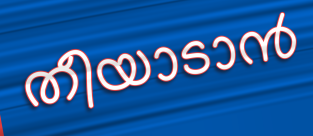
തീയാടാൻ